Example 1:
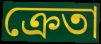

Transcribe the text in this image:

ক্রেতা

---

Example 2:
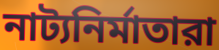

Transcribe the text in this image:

নাট্যনির্মাতারা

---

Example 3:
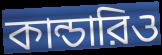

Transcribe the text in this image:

কান্ডারিও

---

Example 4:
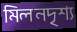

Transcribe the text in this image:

মিলনদৃশ্য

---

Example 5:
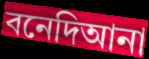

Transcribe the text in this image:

বনেদিআনা